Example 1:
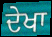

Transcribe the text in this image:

ਦੇਖਾ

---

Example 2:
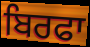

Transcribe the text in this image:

ਬਿਰਫਾ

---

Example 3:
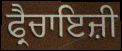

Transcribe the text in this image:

ਫ੍ਰੈਚਾਇਜ਼ੀ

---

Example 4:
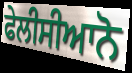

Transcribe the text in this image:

ਫੇਲੀਸੀਆਨੋ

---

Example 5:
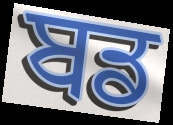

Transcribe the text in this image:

ਬਡ